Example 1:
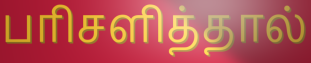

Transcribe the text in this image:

பரிசளித்தால்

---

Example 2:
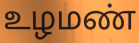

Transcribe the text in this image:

உழமண்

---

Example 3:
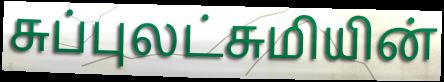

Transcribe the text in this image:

சுப்புலட்சுமியின்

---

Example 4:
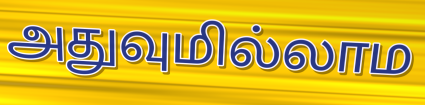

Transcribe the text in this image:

அதுவுமில்லாம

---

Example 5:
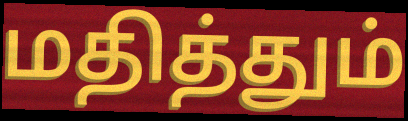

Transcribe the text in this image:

மதித்தும்